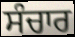
ਸੰਚਾਰ